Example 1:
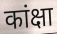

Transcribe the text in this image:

कांक्षा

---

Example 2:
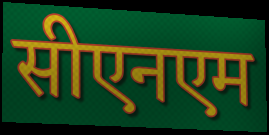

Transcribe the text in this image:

सीएनएम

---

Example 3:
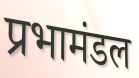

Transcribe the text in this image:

प्रभामंडल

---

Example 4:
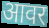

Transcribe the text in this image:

आवर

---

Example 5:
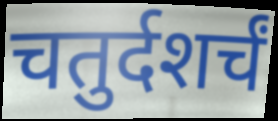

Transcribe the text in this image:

चतुर्दशर्चं